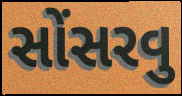
સોંસરવુ